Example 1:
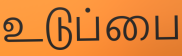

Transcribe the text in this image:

உடுப்பை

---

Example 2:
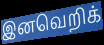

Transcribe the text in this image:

இனவெறிக்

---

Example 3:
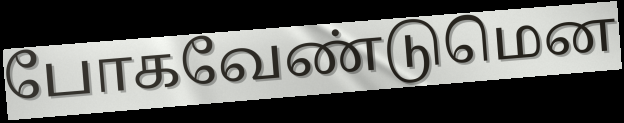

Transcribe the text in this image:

போகவேண்டுமென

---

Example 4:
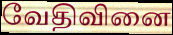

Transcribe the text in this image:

வேதிவினை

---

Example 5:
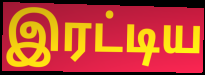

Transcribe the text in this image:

இரட்டிய